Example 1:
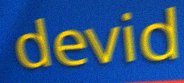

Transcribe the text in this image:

devid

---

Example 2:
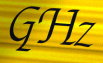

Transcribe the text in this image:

GHz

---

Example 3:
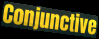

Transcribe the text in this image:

Conjunctive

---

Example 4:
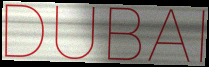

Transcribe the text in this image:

DUBAI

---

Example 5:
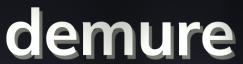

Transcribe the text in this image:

demure